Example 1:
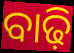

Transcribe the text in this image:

ବାଢ଼ି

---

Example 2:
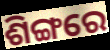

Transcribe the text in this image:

ଶିଙ୍ଗରେ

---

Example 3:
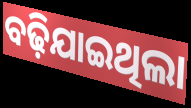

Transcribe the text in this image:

ବଢ଼ିଯାଇଥିଲା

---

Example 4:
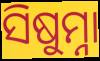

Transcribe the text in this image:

ସିଷୁମ୍ନା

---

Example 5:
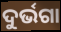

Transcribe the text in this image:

ଦୁର୍ଭଗା